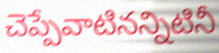
చెప్పేవాటినన్నిటినీ